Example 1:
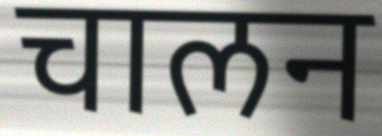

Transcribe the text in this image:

चालन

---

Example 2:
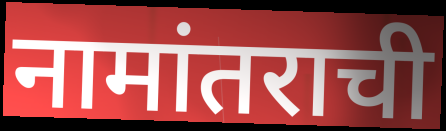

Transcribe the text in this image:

नामांतराची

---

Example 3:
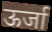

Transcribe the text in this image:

ऊर्जा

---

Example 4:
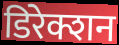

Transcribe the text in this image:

डिरेक्शन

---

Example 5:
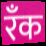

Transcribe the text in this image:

रँक